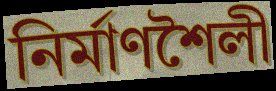
নিৰ্মাণশৈলী